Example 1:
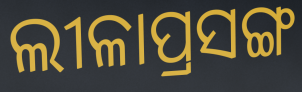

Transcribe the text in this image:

ଲୀଳାପ୍ରସଙ୍ଗ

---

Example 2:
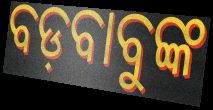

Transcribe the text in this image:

ବଡ଼ବାବୁଙ୍କ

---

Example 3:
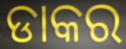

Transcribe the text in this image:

ଡାକର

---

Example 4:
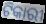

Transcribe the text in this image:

ଟିକାରୀ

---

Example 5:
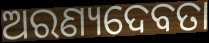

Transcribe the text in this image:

ଅରଣ୍ୟଦେବତା